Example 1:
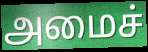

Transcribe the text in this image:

அமைச்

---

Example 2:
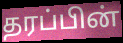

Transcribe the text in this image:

தரப்பின்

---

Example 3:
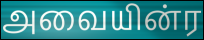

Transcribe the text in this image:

அவையின்ர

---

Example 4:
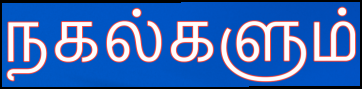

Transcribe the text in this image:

நகல்களும்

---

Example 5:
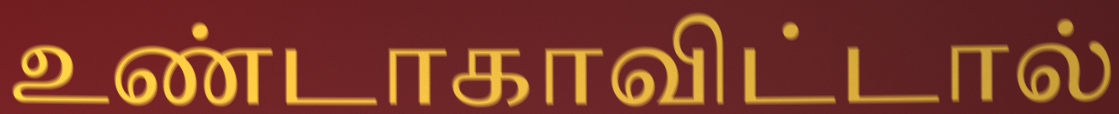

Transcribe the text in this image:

உண்டாகாவிட்டால்